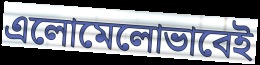
এলোমেলোভাবেই